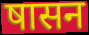
षासन